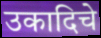
उकादिचे